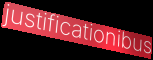
justificationibus